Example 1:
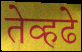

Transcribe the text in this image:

तेव्हढे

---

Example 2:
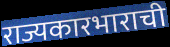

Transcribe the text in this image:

राज्यकारभाराची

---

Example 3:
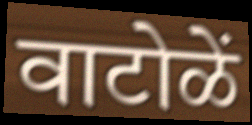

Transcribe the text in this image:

वाटोळें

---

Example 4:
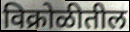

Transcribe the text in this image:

विक्रोळीतील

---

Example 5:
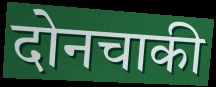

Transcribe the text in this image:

दोनचाकी